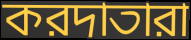
করদাতারা